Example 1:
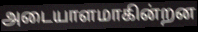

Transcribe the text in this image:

அடையாளமாகின்றன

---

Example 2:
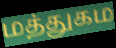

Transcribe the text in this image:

மத்துகம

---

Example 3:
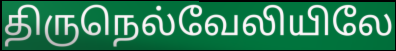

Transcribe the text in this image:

திருநெல்வேலியிலே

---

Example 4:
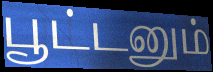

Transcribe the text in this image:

பூட்டனும்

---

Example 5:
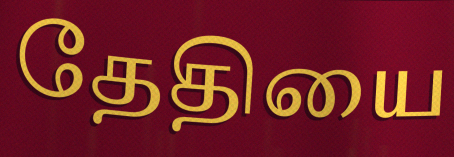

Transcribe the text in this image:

தேதியை